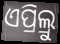
ଏପ୍ରିଲ୍ରୁ